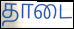
தாடை